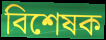
বিশেষক